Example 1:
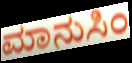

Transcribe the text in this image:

ಮಾನುಸಿಂ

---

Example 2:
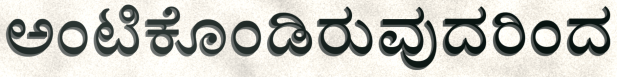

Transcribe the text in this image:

ಅಂಟಿಕೊಂಡಿರುವುದರಿಂದ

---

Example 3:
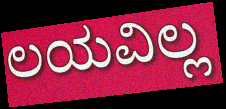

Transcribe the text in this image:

ಲಯವಿಲ್ಲ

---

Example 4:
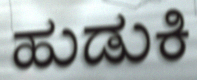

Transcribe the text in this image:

ಹುಡುಕಿ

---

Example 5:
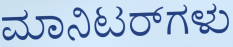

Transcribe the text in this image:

ಮಾನಿಟರ್‌ಗಳು